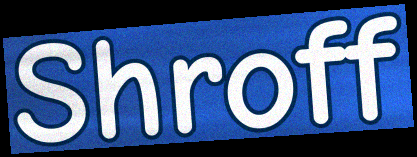
Shroff